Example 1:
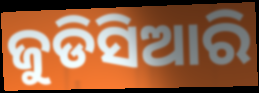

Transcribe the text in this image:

ଜୁଡିସିଆରି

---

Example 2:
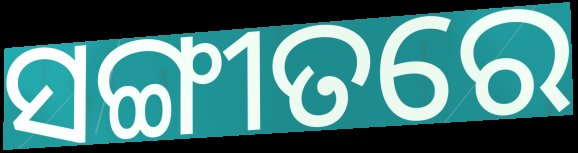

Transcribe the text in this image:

ସଙ୍ଗୀତରେ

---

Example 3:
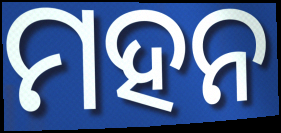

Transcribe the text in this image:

ମହନ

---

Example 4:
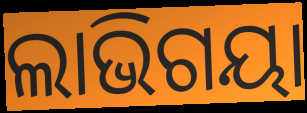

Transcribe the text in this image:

ଲାଭିଗୟା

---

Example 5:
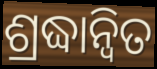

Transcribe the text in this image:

ଶ୍ରଦ୍ଧାନ୍ୱିତ